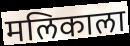
मलिकाला